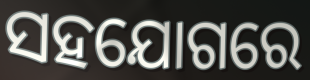
ସହଯୋଗରେ